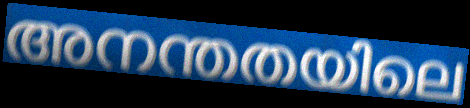
അനന്തതയിലെ